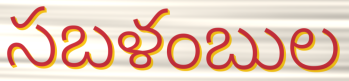
సబళంబుల